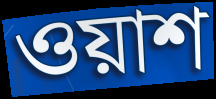
ওয়াশ